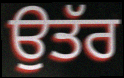
ਉਤੱਰ